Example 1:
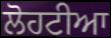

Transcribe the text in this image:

ਲੋਹਟੀਆ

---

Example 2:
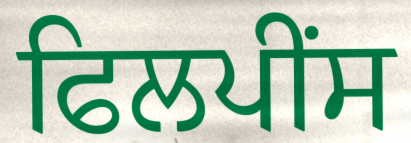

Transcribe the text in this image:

ਫਿਲਪੀਂਸ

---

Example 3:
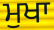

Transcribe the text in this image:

ਮੁਖਾ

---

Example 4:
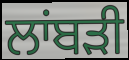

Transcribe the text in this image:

ਲਾਂਬੜੀ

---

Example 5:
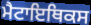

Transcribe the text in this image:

ਮੈਟਾਇਥਿਕਸ